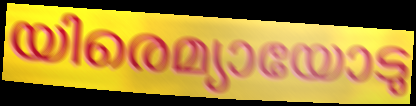
യിരെമ്യായോടു